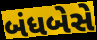
બંધબેસે